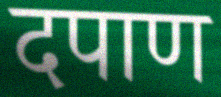
दपाण